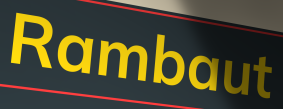
Rambaut